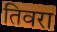
तिवरा